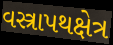
વસ્ત્રાપથક્ષેત્ર